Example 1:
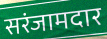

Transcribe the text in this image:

सरंजामदार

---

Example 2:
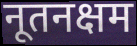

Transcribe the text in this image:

नूतनक्षम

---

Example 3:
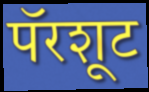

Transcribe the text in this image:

पॅरशूट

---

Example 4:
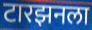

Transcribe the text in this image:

टारझनला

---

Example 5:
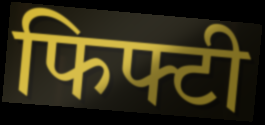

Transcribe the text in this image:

फिफ्टी